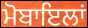
ਮੋਬਾਇਲਾਂ